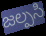
జల్పసి